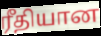
ரீதியான